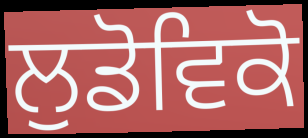
ਲੁਡੋਵਿਕੋ